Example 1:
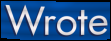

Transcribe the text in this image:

Wrote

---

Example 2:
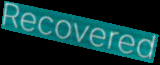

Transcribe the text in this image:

Recovered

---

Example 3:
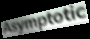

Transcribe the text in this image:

Asymptotic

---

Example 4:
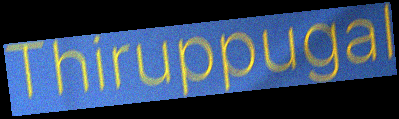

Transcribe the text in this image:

Thiruppugal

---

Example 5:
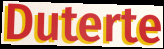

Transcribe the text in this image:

Duterte